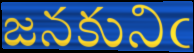
జనకునిఁ